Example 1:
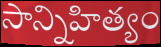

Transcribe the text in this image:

సాన్నిహిత్యం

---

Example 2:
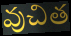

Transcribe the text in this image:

వుచిత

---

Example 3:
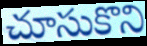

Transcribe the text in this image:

చూసుకొని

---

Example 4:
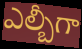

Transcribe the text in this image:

ఎల్బీగా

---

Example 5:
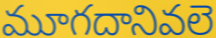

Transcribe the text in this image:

మూగదానివలె